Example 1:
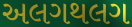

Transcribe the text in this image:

અલગથલગ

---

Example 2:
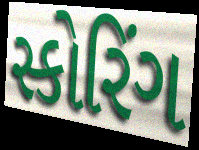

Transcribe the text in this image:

સ્કોરિંગ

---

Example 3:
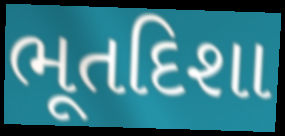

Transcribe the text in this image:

ભૂતદિશા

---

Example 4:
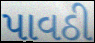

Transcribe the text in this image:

પાવઠી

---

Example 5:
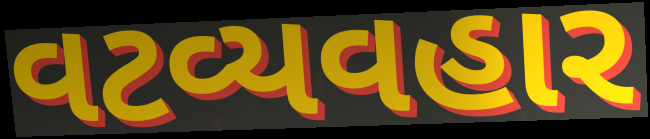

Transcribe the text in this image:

વટવ્યવહાર